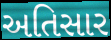
અતિસાર